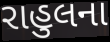
રાહુલના